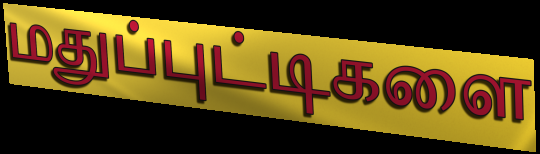
மதுப்புட்டிகளை